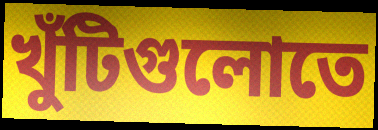
খুঁটিগুলোতে